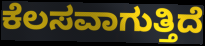
ಕೆಲಸವಾಗುತ್ತಿದೆ